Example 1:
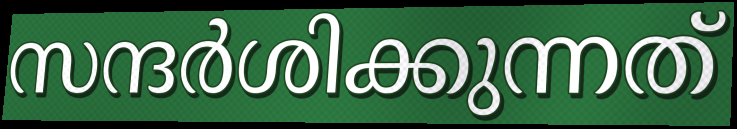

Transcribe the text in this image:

സന്ദർശിക്കുന്നത്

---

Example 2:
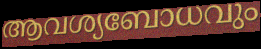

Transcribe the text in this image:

ആവശ്യബോധവും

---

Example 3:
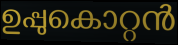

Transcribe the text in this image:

ഉപ്പുകൊറ്റൻ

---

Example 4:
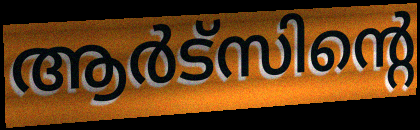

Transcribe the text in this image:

ആർട്സിന്റെ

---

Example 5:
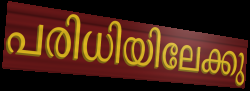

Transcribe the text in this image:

പരിധിയിലേക്കു